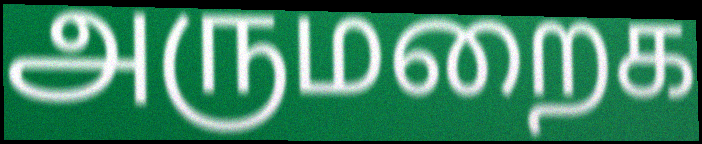
அருமறைக